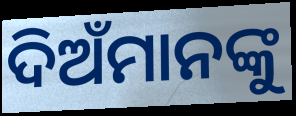
ଦିଅଁମାନଙ୍କୁ